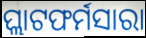
ପ୍ଲାଟଫର୍ମସାରା